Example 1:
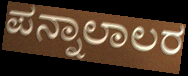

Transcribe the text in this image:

ಪನ್ನಾಲಾಲರ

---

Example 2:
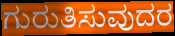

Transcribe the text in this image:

ಗುರುತಿಸುವುದರ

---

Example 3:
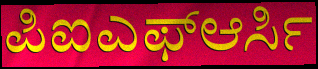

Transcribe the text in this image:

ಪಿಐಎಫ್ಆರ್ಸಿ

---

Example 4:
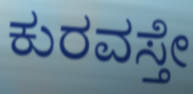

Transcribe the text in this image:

ಕುರವಸ್ತೇ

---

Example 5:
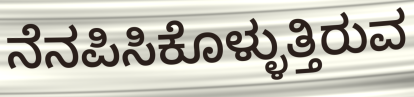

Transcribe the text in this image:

ನೆನಪಿಸಿಕೊಳ್ಳುತ್ತಿರುವ